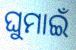
ଘୁମାଇଁ